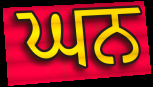
ਘਨ